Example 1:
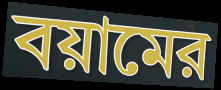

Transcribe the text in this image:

বয়ামের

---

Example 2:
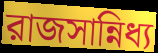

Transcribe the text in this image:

রাজসান্নিধ্য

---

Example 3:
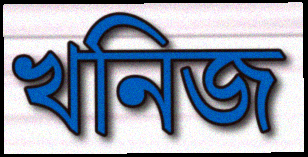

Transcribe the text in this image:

খনিজ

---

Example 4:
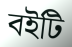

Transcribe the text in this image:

বইটি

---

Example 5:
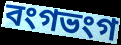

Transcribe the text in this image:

বংগভংগ